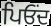
ਪਿਓਂਦ